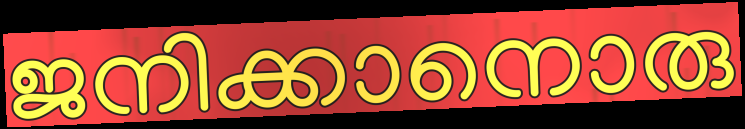
ജനിക്കാനൊരു